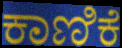
ಕಾಣಿಕೆ